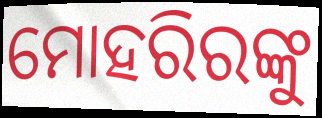
ମୋହରିରଙ୍କୁ